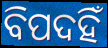
ବିପଦହିଁ